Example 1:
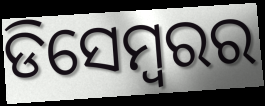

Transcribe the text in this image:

ଡିସେମ୍ୱରର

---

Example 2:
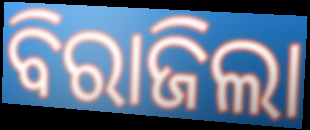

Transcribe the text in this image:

ବିରାଜିଲା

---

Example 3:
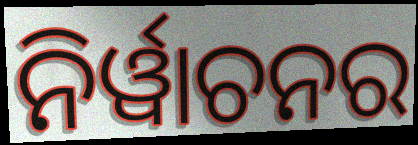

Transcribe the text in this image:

ନିର୍ୱାଚନର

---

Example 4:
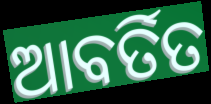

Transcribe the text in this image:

ଆବର୍ତିତ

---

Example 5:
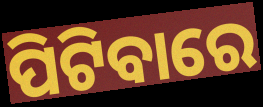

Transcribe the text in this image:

ପିଟିବାରେ